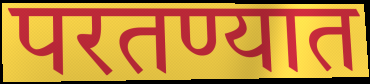
परतण्यात